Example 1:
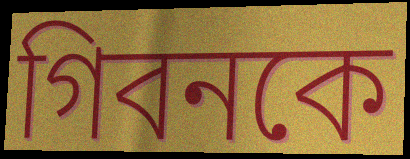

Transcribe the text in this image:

গিবনকে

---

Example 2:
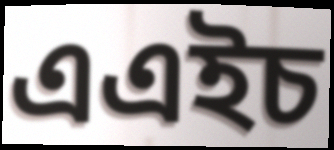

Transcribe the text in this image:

এএইচ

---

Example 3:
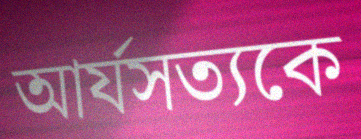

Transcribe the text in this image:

আর্যসত্যকে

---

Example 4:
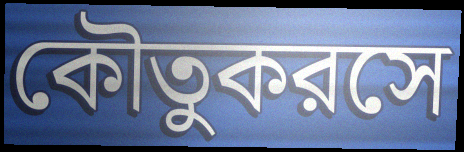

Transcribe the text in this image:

কৌতুকরসে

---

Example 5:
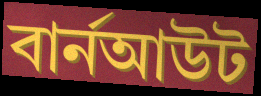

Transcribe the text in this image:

বার্নআউট